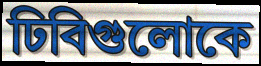
ঢিবিগুলোকে